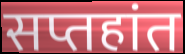
सप्तहांत